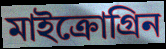
মাইক্রোগ্রিন